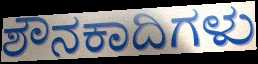
ಶೌನಕಾದಿಗಳು